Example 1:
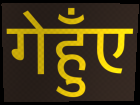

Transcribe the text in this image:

गेहुँए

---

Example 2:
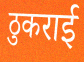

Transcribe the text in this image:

ठुकराई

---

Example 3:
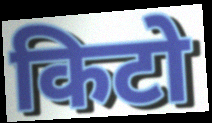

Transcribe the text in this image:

किटो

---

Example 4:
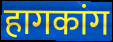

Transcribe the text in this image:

हागकांग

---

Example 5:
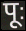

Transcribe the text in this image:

पूः